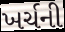
ખર્ચની